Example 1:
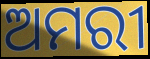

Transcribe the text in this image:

ଅମରୀ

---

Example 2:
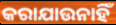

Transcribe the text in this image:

କରାଯାଉନାହିଁ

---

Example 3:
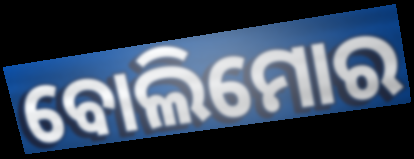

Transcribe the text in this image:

ବୋଲିମୋର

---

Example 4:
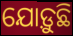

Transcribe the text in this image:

ଯୋଡ଼ୁଛି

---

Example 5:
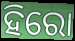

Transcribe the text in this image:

ହିରୋ